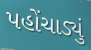
પહોંચાડ્યું